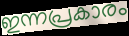
ഇന്നപ്രകാരം